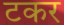
टकर